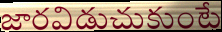
జారవిడుచుకుంటే